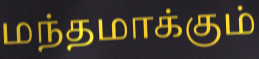
மந்தமாக்கும்